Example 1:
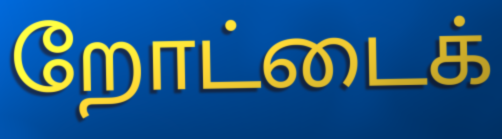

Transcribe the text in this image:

றோட்டைக்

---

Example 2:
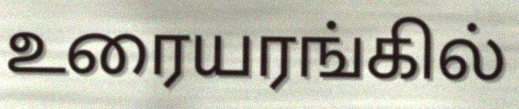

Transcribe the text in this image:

உரையரங்கில்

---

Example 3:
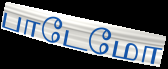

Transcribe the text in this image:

பாடேமோ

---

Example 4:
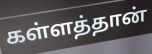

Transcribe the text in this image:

கள்ளத்தான்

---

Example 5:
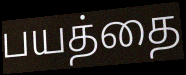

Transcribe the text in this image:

பயத்தை